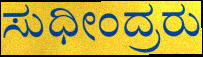
ಸುಧೀಂದ್ರರು